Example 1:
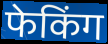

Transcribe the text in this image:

फेकिंग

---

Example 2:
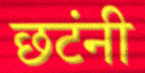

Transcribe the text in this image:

छटंनी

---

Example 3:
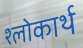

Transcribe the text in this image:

श्लोकार्थ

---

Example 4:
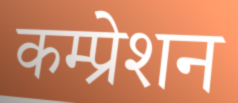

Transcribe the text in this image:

कम्प्रेशन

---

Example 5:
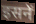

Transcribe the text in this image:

इसनें